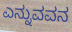
ಎನ್ನುವವನ